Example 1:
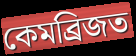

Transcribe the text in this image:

কেমব্ৰিজত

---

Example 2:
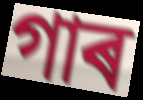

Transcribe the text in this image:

গাৰ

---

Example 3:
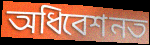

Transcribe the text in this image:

অধিবেশনত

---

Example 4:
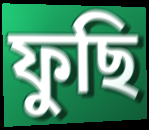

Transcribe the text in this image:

ফুছি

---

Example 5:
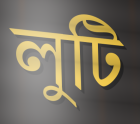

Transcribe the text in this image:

লুটি